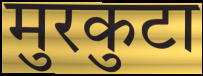
मुरकुटा